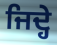
ਜਿਦ੍ਹੇ